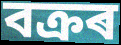
বক্ৰৰ